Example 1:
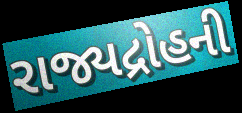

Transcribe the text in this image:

રાજ્યદ્રોહની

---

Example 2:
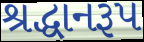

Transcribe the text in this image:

શ્રદ્ધાનરૂપ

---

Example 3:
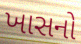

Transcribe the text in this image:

ખાસનો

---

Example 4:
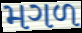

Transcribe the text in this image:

મગળ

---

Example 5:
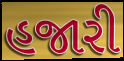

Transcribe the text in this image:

હજારી